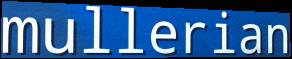
mullerian